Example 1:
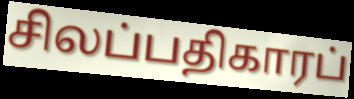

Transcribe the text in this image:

சிலப்பதிகாரப்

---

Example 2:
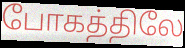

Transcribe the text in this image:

போகத்திலே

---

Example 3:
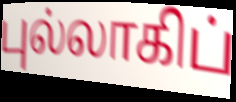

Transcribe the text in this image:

புல்லாகிப்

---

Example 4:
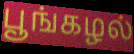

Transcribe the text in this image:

பூங்கழல்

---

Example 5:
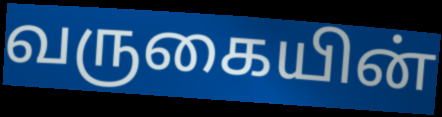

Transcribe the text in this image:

வருகையின்